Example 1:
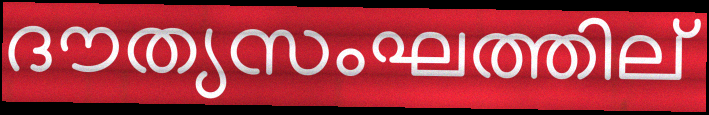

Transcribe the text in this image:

ദൗത്യസംഘത്തില്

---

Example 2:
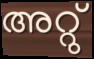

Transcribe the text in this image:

അറ്റു്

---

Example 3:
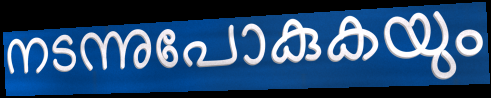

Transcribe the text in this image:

നടന്നുപോകുകയും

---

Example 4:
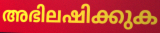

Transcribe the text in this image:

അഭിലഷിക്കുക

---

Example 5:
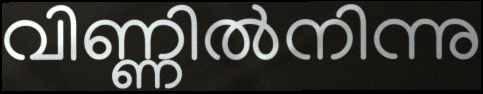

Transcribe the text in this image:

വിണ്ണിൽനിന്നു